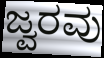
ಜ್ವರವು